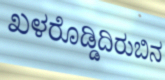
ಖಳರೊಡ್ಡಿದಿರುಬಿನ